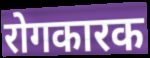
रोगकारक